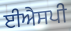
ਈਐਸਪੀ